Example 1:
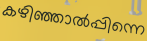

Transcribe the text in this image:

കഴിഞ്ഞാൽപ്പിന്നെ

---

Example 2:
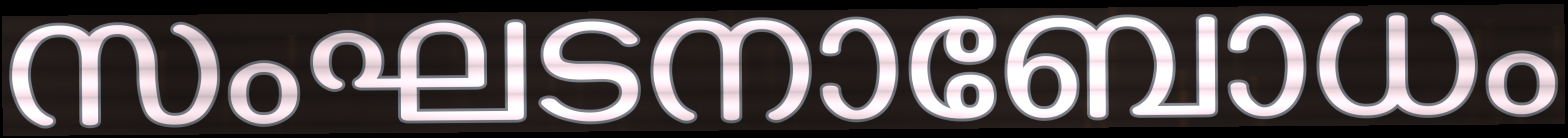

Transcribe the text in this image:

സംഘടനാബോധം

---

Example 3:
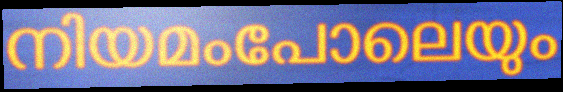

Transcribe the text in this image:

നിയമംപോലെയും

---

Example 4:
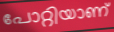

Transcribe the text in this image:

പോറ്റിയാണ്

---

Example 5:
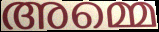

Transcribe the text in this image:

അമ്മെ